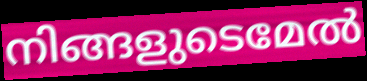
നിങ്ങളുടെമേൽ